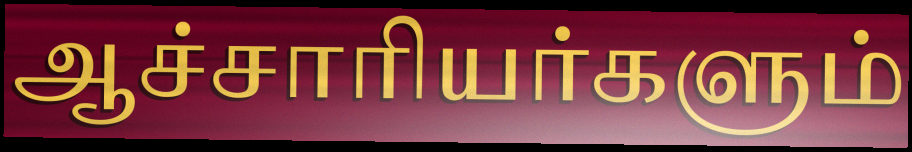
ஆச்சாரியர்களும்